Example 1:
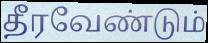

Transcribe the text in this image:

தீரவேண்டும்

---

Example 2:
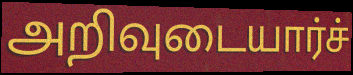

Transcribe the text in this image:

அறிவுடையார்ச்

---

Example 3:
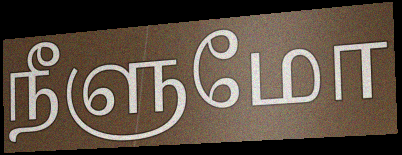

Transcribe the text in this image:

நீளுமோ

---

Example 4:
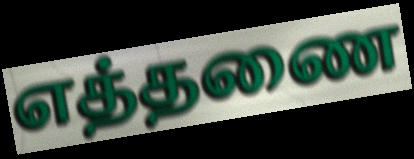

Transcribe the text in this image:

எத்தணை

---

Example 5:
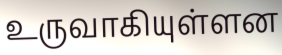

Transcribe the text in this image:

உருவாகியுள்ளன